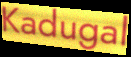
Kadugal